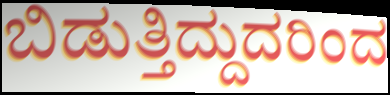
ಬಿಡುತ್ತಿದ್ದುದರಿಂದ